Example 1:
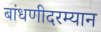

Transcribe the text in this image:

बांधणीदरम्यान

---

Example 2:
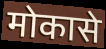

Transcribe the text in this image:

मोकासे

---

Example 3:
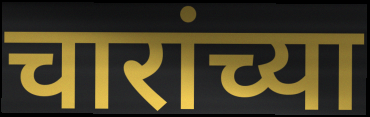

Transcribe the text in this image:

चारांच्या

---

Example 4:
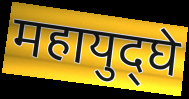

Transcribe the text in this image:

महायुद्घे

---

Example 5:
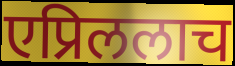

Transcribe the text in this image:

एप्रिललाच